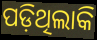
ପଡ଼ିଥିଲାକି